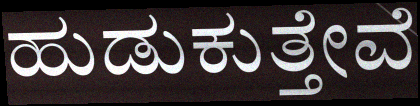
ಹುಡುಕುತ್ತೇವೆ